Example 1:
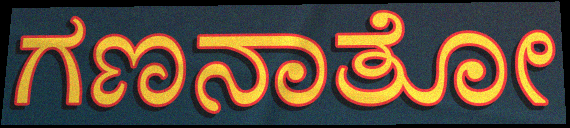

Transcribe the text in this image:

ಗಣನಾತೋ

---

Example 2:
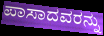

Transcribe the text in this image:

ಪಾಸಾದವರನ್ನು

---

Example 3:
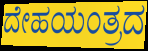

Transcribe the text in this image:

ದೇಹಯಂತ್ರದ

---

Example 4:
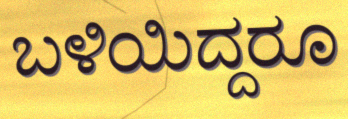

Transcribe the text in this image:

ಬಳಿಯಿದ್ದರೂ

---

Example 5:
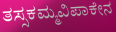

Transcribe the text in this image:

ತಸ್ಸಕಮ್ಮವಿಪಾಕೇನ